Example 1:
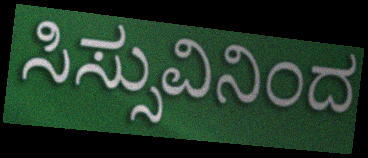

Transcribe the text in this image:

ಸಿಸ್ಸುವಿನಿಂದ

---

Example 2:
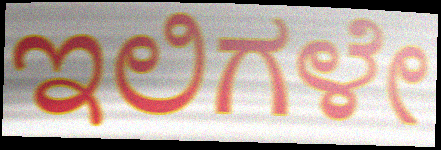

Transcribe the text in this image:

ಇಲಿಗಳೇ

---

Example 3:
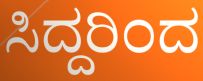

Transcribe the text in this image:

ಸಿದ್ದರಿಂದ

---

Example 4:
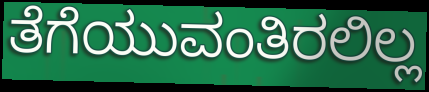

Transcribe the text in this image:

ತೆಗೆಯುವಂತಿರಲಿಲ್ಲ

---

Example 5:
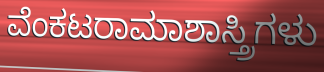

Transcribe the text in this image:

ವೆಂಕಟರಾಮಾಶಾಸ್ತ್ರಿಗಳು